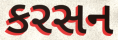
કરસન